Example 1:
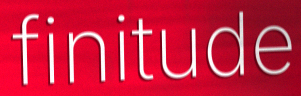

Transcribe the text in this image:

finitude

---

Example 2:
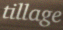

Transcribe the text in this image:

tillage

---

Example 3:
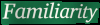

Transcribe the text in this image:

Familiarity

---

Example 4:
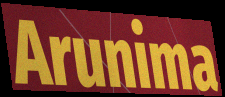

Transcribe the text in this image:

Arunima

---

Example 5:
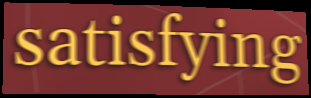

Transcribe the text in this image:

satisfying